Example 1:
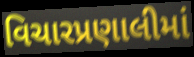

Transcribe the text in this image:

વિચારપ્રણાલીમાં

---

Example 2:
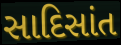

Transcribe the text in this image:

સાદિસાંત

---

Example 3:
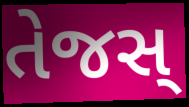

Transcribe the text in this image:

તેજસ્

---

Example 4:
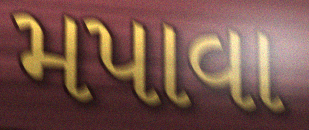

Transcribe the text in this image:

મપાવા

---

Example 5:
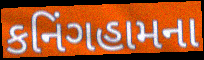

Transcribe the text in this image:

કનિંગહામના